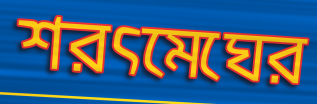
শরৎমেঘের